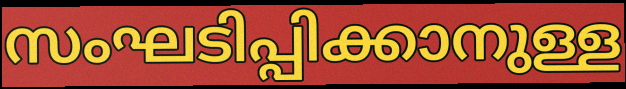
സംഘടിപ്പിക്കാനുള്ള